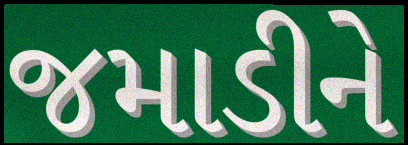
જમાડીને